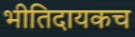
भीतिदायकच